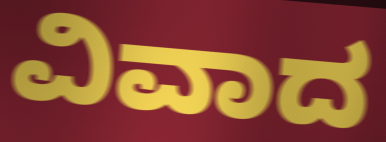
ವಿವಾದ